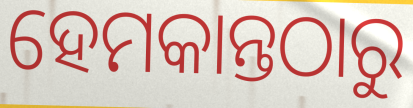
ହେମକାନ୍ତଠାରୁ